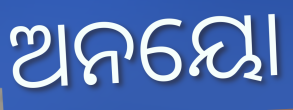
ଅନୟୋ